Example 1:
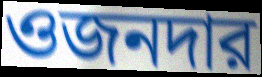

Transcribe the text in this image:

ওজনদার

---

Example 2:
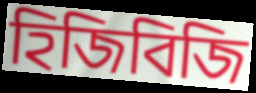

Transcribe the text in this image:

হিজিবিজি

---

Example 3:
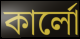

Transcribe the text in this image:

কার্লো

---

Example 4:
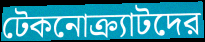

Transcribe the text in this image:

টেকনোক্র্যাটদের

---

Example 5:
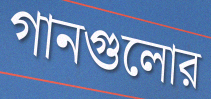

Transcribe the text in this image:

গানগুলোর